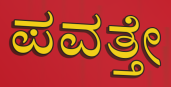
ಪವತ್ತೇ